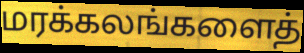
மரக்கலங்களைத்